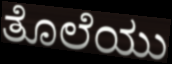
ತೊಲೆಯು